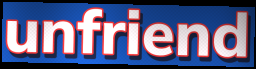
unfriend